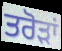
ਤਰੋੜਾਂ